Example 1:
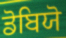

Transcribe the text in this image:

ਡੋਬਿਯੋ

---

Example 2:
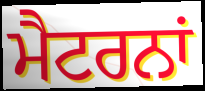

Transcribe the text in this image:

ਮੈਟਰਨਾਂ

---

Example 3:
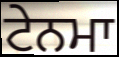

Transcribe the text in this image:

ਟੇਨਮਾ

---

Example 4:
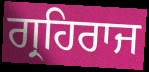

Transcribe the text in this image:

ਗ੍ਰਹਿਰਾਜ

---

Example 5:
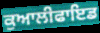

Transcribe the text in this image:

ਕੁਆਲੀਫਾਇਡ